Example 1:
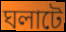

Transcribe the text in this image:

ঘলাটে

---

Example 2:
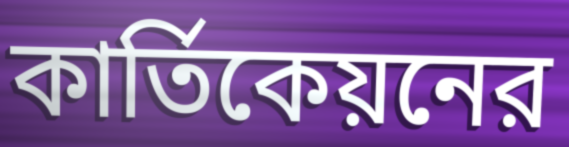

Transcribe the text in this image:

কার্তিকেয়নের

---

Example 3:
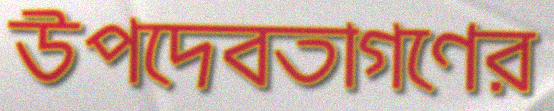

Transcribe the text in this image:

উপদেবতাগণের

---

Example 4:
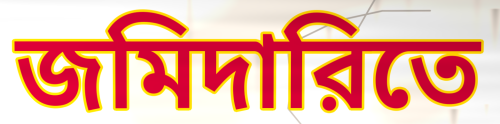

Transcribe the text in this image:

জমিদারিতে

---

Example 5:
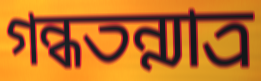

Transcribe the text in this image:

গন্ধতন্মাত্র